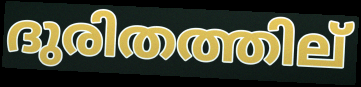
ദുരിതത്തില്